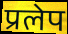
प्रलेप